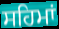
ਸਹਿਮਾਂ